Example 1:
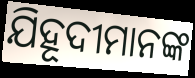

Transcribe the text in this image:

ଯିହୂଦୀମାନଙ୍କ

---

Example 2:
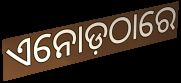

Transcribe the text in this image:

ଏନୋଡ଼ଠାରେ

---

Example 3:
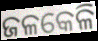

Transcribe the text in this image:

ଜଳକେଳି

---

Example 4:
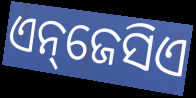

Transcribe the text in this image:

ଏନ୍‌ଜେସିଏ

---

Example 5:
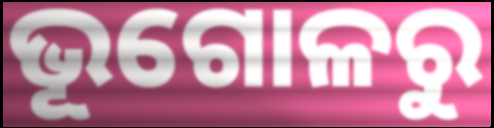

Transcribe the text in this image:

ଭୂଗୋଳରୁ